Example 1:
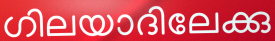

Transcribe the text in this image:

ഗിലയാദിലേക്കു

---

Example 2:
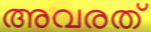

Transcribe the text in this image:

അവരത്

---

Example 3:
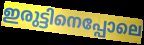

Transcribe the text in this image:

ഇരുട്ടിനെപ്പോലെ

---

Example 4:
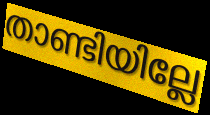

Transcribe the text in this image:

താണ്ടിയില്ലേ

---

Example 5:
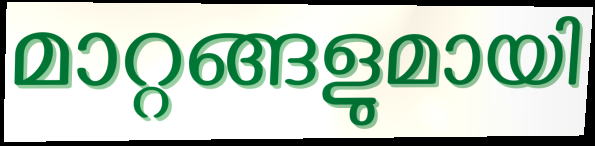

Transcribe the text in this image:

മാറ്റങ്ങളുമായി